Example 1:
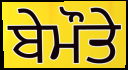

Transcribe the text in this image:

ਬੇਮੌਤੇ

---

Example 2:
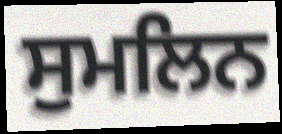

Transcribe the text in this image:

ਸੁਮਲਿਨ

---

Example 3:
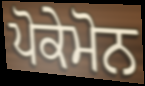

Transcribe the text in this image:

ਪੋਕੇਮੋਨ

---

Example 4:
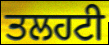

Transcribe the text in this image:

ਤਲਹਟੀ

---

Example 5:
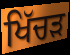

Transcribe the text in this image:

ਖਿੱਚੜ